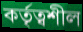
কৰ্তৃত্বশীল